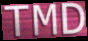
TMD